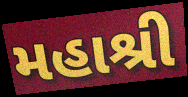
મહાશ્રી